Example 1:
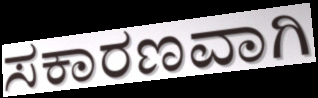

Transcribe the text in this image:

ಸಕಾರಣವಾಗಿ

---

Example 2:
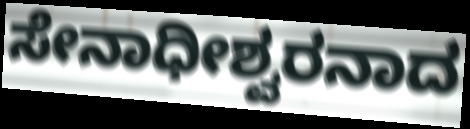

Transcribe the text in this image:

ಸೇನಾಧೀಶ್ವರನಾದ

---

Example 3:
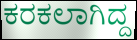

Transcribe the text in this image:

ಕರಕಲಾಗಿದ್ದ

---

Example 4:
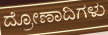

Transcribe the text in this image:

ದ್ರೋಣಾದಿಗಳು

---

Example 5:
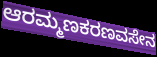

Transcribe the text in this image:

ಆರಮ್ಮಣಕರಣವಸೇನ